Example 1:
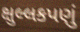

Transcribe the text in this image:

ક્ષુલ્લકપણું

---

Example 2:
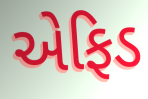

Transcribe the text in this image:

એફિડ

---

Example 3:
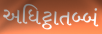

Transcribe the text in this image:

અધિટ્ઠાતબ્બં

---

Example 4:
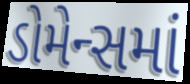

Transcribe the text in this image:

ડોમેન્સમાં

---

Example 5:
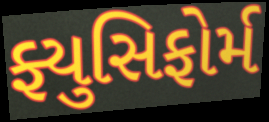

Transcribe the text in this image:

ફ્યુસિફોર્મ